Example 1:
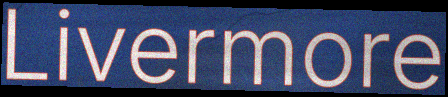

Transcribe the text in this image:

Livermore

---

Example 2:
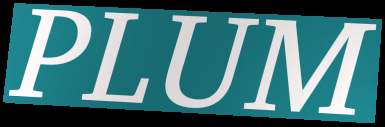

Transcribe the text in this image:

PLUM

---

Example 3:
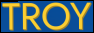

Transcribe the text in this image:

TROY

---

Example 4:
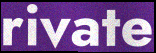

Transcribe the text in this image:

rivate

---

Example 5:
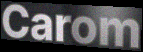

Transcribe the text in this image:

Carom